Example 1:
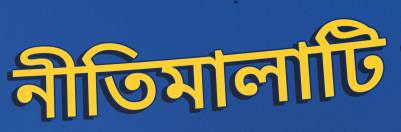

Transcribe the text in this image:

নীতিমালাটি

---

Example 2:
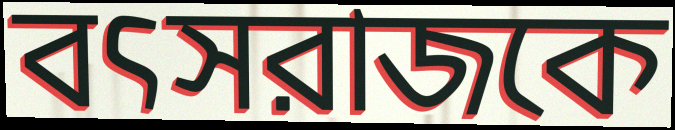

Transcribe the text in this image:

বৎসরাজকে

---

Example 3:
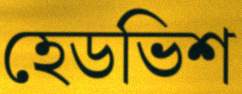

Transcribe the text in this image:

হেডভিশ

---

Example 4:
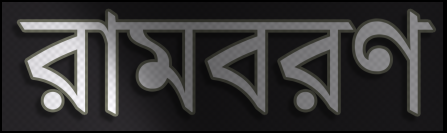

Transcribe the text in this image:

রামবরণ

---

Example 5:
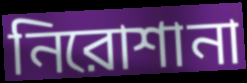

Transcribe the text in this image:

নিরোশানা